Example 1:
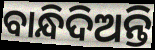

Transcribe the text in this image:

ବାନ୍ଧିଦିଅନ୍ତି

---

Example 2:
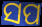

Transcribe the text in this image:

ସପ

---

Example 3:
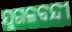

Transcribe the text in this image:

ଯୁଗଳବନ୍ଦୀ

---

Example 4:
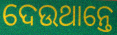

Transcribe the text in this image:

ଦେଉଥାନ୍ତେ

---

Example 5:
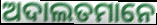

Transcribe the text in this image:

ଅଦାଲତମାନେ